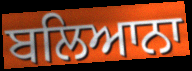
ਬਲਿਆਨਾ